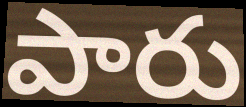
పారు